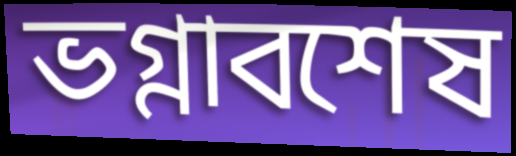
ভগ্নাবশেষ